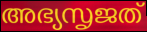
അഭ്യസൃജത്